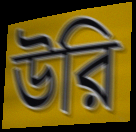
উরি